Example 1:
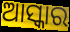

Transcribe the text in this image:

ଆସ୍କାର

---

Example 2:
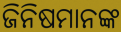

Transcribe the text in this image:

ଜିନିଷମାନଙ୍କ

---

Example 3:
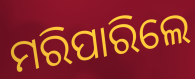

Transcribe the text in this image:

ମରିପାରିଲେ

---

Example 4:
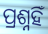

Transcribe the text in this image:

ପ୍ରଶ୍ନହିଁ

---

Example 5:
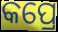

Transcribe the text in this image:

କପ୍ରେ